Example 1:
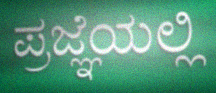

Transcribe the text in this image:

ಪ್ರಜ್ಞೆಯಲ್ಲಿ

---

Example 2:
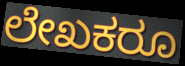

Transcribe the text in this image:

ಲೇಖಕರೂ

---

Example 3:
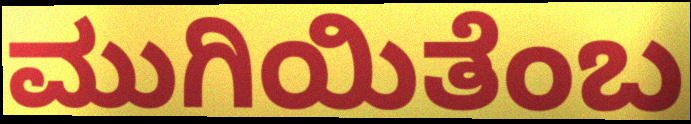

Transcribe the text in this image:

ಮುಗಿಯಿತೆಂಬ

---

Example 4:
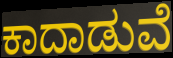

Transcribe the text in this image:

ಕಾದಾಡುವೆ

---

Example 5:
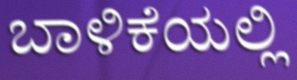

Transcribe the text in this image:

ಬಾಳಿಕೆಯಲ್ಲಿ